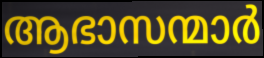
ആഭാസന്മാർ